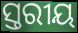
ସ୍ତରୀୟ